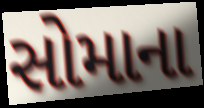
સોમાના